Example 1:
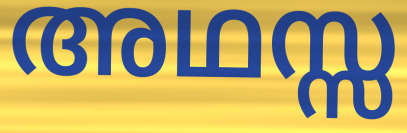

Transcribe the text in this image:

അഥസ്സ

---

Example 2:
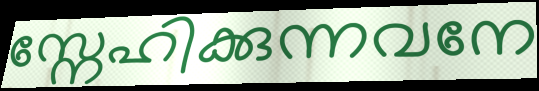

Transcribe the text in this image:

സ്നേഹിക്കുന്നവനേ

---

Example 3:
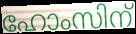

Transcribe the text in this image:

ഹോംസിന്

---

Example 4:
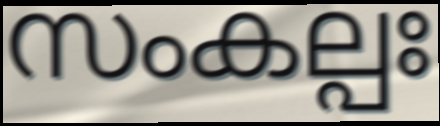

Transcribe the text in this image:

സംകല്പഃ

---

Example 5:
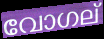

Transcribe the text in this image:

വോഗല്